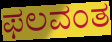
ಫಲವಂತ